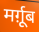
मर्ग़ूब